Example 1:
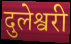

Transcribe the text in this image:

दुलेश्वरी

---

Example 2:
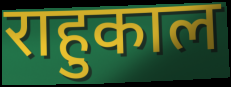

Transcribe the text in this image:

राहुकाल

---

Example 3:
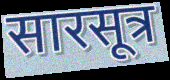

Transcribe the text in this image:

सारसूत्र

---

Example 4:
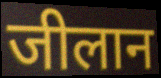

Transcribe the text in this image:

जीलान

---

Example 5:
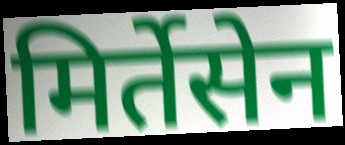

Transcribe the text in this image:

मिर्तेसेन